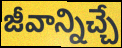
జీవాన్నిచ్చే